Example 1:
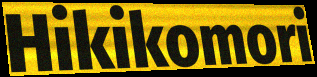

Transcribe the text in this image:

Hikikomori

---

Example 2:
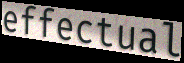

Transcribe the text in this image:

effectual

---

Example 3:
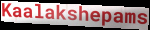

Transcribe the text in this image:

Kaalakshepams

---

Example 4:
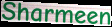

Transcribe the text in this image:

Sharmeen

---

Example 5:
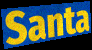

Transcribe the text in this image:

Santa